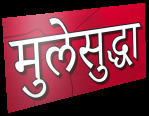
मुलेसुद्धा